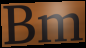
Bm